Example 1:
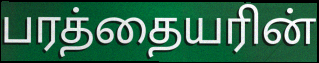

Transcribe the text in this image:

பரத்தையரின்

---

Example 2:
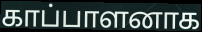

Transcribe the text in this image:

காப்பாளனாக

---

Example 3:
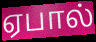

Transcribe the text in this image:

ஏபால்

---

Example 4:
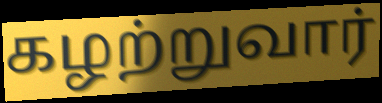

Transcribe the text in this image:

கழற்றுவார்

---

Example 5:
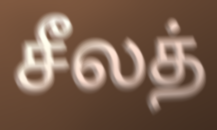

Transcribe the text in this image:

சீலத்